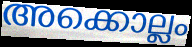
അക്കൊല്ലം